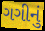
ગગીનું